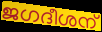
ജഗദീശന്